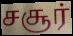
சசூர்